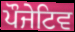
ਪੌਜੇਟਿਵ